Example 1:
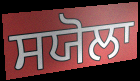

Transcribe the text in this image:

ਸਯੋਲਾ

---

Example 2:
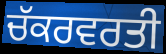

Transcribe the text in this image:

ਚੱਕਰਵਰਤੀ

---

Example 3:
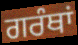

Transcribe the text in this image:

ਗਰੰਥਾਂ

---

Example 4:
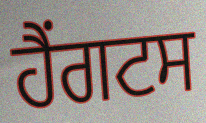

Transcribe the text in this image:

ਹੈਂਗਟਸ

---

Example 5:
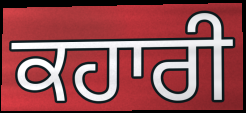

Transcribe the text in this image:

ਕਹਾਰੀ